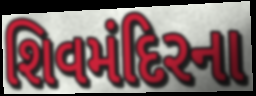
શિવમંદિરના